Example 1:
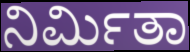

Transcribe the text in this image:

ನಿರ್ಮಿತಾ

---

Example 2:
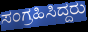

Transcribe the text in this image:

ಸಂಗ್ರಹಿಸಿದ್ದರು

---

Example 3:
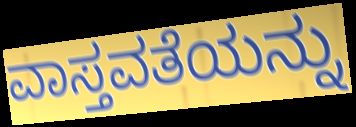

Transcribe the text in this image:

ವಾಸ್ತವತೆಯನ್ನು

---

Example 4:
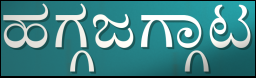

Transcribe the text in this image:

ಹಗ್ಗಜಗ್ಗಾಟ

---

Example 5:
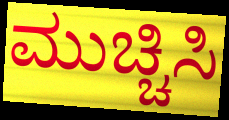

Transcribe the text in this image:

ಮುಚ್ಚಿಸಿ